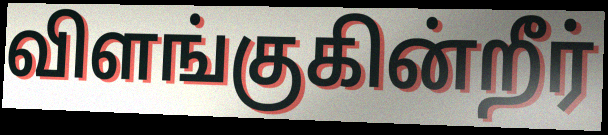
விளங்குகின்றீர்